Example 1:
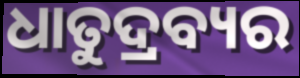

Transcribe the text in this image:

ଧାତୁଦ୍ରବ୍ୟର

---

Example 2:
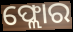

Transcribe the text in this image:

ଫ୍ଲୋର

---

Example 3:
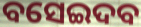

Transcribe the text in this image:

ବସେଇଦବ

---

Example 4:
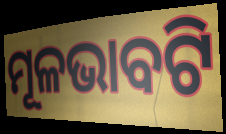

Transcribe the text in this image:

ମୂଳଭାବଟି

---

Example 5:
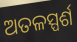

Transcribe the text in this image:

ଅତଳସ୍ପର୍ଶ